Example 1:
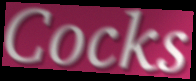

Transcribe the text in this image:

Cocks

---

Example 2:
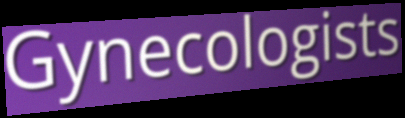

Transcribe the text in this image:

Gynecologists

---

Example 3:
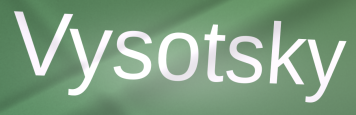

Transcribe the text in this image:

Vysotsky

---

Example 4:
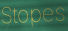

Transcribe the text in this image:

Stopes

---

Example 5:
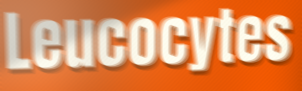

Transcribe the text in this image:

Leucocytes